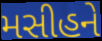
મસીહને